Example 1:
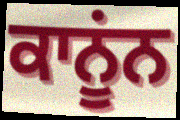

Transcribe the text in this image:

ਕਾਨੂਂਨ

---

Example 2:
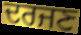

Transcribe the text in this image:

ਦਰਜਣ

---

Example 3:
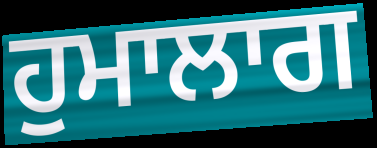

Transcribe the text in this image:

ਹੁਮਾਲਾਗ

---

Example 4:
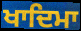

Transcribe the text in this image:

ਖਾਦਿਮਾ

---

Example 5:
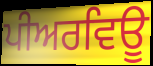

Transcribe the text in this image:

ਪੀਅਰਵਿਊ